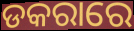
ଡକରାରେ